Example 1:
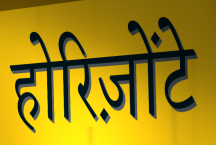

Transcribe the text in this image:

होरिज़ोंटे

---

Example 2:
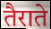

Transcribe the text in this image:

तैराते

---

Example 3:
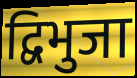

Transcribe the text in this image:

द्विभुजा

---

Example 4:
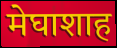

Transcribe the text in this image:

मेघाशाह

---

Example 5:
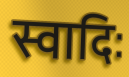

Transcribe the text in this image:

स्वादिः